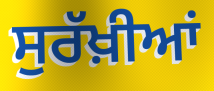
ਸੁਰੱਖ਼ੀਆਂ